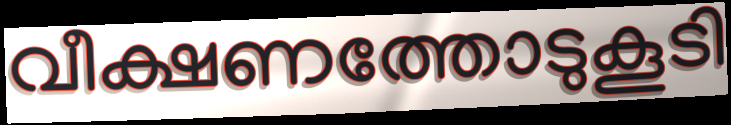
വീക്ഷണത്തോടുകൂടി